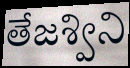
తేజశ్విని